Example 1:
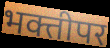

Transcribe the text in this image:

भक्तीपर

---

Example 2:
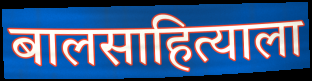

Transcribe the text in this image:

बालसाहित्याला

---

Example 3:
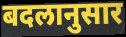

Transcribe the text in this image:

बदलानुसार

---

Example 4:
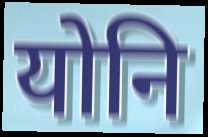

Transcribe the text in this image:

योनि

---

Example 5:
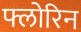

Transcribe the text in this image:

फ्लोरिन